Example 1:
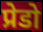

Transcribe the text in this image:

प्रेडो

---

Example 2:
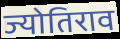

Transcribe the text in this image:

ज्योतिराव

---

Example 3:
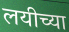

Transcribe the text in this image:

लयीच्या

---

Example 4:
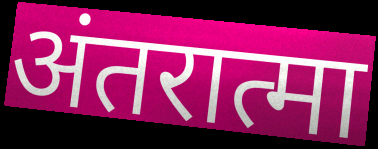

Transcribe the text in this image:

अंतरात्मा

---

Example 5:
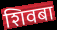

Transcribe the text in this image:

शिवबा